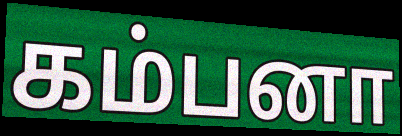
கம்பனா